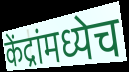
केंद्रांमध्येच